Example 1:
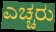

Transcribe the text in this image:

ಎಚ್ಚರು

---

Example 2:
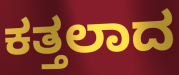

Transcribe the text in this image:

ಕತ್ತಲಾದ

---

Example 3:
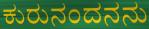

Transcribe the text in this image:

ಕುರುನಂದನನು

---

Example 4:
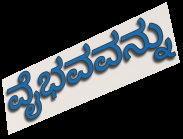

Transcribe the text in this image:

ವೈಭವವನ್ನು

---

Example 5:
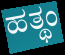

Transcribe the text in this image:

ಹತ್ಥಂ